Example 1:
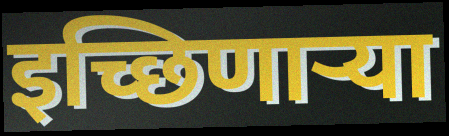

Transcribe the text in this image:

इच्छिणार्‍या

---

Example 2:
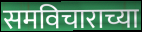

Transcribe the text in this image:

समविचाराच्या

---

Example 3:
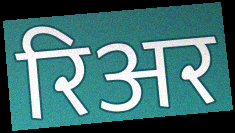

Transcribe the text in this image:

रिअर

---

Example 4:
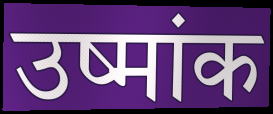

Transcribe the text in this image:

उष्मांक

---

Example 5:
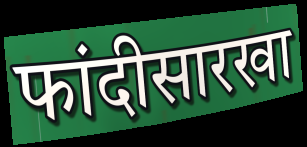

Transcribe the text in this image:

फांदीसारखा